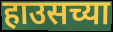
हाउसच्या